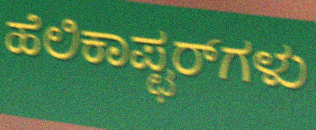
ಹೆಲಿಕಾಪ್ಟರ್‌ಗಳು